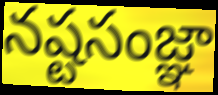
నష్టసంజ్ఞా